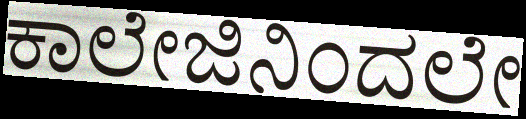
ಕಾಲೇಜಿನಿಂದಲೇ